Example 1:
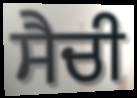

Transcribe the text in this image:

ਸੈਚੀ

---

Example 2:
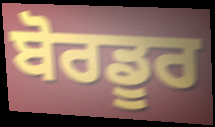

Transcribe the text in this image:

ਬੋਰਡੂਰ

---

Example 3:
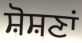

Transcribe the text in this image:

ਸ਼ੋਸ਼ਣਾਂ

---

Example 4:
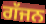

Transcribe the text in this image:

ਗੱਜਨ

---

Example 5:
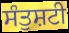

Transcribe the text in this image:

ਸੰਤੁਸ਼ਟੀ